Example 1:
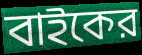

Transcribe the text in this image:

বাইকের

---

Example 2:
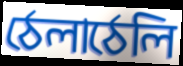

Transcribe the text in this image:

ঠেলাঠেলি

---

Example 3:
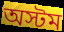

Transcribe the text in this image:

অস্টম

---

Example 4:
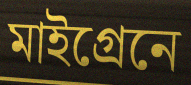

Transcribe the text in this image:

মাইগ্রেনে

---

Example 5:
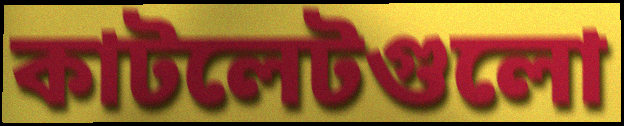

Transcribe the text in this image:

কাটলেটগুলো